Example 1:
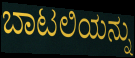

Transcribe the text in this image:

ಬಾಟಲಿಯನ್ನು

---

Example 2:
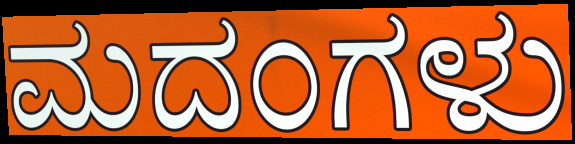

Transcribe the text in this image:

ಮದಂಗಳು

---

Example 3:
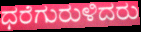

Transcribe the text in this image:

ಧರೆಗುರುಳಿದರು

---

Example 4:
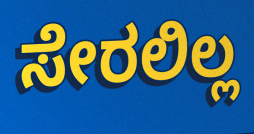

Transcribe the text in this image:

ಸೇರಲಿಲ್ಲ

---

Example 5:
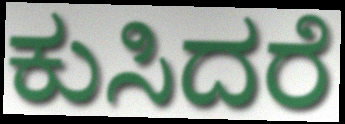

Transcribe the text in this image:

ಕುಸಿದರೆ